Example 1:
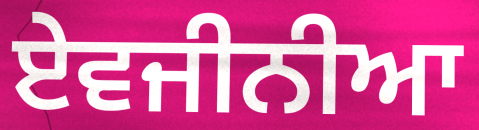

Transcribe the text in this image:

ਏਵਜੀਨੀਆ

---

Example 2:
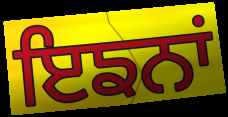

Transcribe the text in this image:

ਇਙਨਾਂ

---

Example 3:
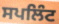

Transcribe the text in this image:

ਸਪਲਿੰਟ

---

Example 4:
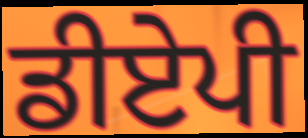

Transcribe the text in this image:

ਡੀਏਪੀ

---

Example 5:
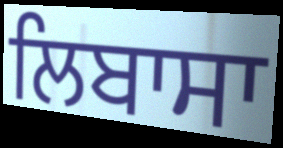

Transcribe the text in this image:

ਲਿਬਾਸਾ